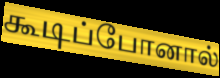
கூடிப்போனால்